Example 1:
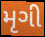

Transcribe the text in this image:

મૃગી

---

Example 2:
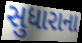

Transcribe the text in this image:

સુધારાના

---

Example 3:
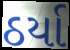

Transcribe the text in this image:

ઠર્યા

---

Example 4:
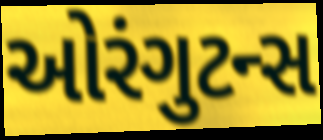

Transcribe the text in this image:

ઓરંગુટન્સ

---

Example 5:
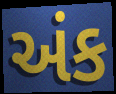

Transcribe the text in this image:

અંક